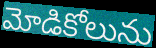
మోడికోలును